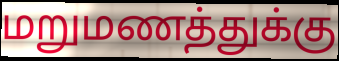
மறுமணத்துக்கு